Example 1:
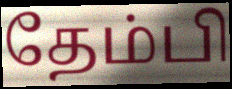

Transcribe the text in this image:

தேம்பி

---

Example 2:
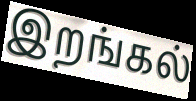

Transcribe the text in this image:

இறங்கல்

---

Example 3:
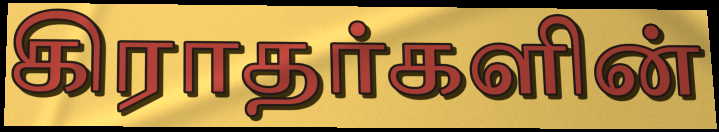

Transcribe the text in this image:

கிராதர்களின்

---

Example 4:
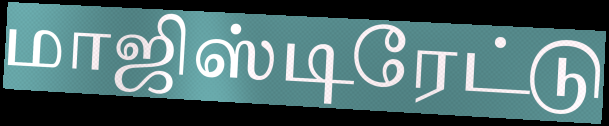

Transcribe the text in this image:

மாஜிஸ்டிரேட்டு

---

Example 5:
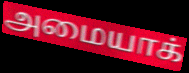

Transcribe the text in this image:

அமையாக்